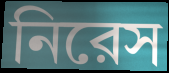
নিরেস